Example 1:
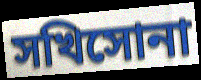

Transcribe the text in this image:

সখিসোনা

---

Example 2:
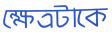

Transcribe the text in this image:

ক্ষেত্রটাকে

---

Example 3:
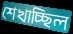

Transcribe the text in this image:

শেখাচ্ছিল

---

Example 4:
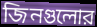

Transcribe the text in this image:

জিনগুলোর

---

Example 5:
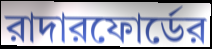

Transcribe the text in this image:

রাদারফোর্ডের